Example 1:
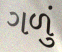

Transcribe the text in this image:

ગળું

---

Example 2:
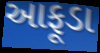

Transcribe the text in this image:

આફૂડા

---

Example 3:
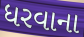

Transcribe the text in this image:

ધરવાના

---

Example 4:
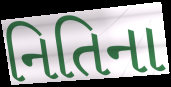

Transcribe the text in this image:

નિતિના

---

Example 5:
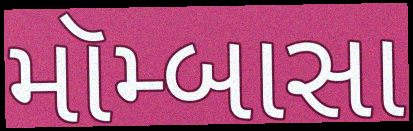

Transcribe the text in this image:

મૉમ્બાસા